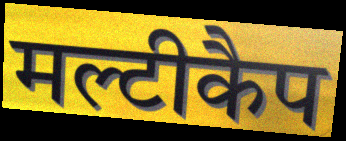
मल्‍टीकैप